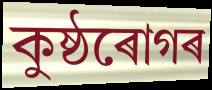
কুষ্ঠৰোগৰ